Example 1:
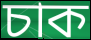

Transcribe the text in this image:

চাক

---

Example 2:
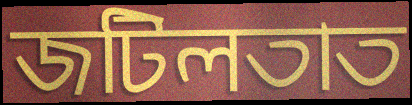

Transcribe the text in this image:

জটিলতাত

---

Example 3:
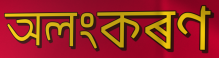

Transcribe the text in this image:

অলংকৰণ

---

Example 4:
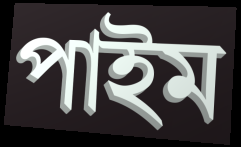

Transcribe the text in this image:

পাইম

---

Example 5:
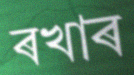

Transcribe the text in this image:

ৰখাৰ